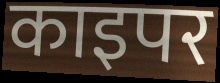
काइपर